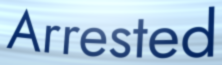
Arrested